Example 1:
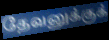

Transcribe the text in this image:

தேவனுக்குக்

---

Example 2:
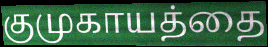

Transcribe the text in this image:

குமுகாயத்தை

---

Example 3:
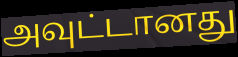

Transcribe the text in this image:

அவுட்டானது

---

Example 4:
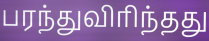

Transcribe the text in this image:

பரந்துவிரிந்தது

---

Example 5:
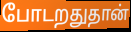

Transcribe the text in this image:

போடறதுதான்